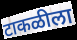
टाकळीला